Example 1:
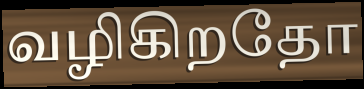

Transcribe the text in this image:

வழிகிறதோ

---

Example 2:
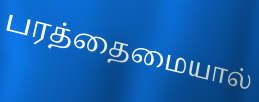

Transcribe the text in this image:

பரத்தைமையால்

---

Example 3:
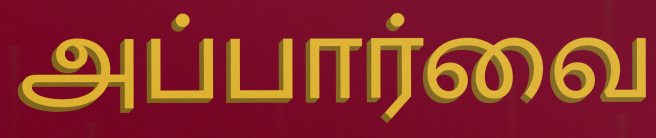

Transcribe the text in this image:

அப்பார்வை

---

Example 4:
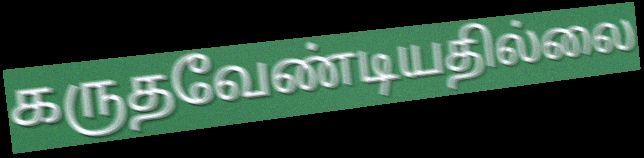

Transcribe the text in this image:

கருதவேண்டியதில்லை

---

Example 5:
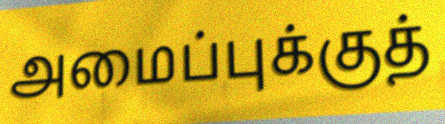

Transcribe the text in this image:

அமைப்புக்குத்